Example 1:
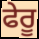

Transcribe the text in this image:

ਫੇਰੂ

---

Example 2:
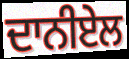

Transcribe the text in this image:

ਦਾਨੀਏਲ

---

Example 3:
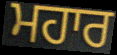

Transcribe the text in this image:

ਮਹਾਰ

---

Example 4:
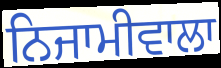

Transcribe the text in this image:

ਨਿਜਾਮੀਵਾਲਾ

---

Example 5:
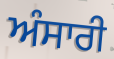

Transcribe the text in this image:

ਅੰਸਾਰੀ